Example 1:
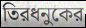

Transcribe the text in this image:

তিরধনুকের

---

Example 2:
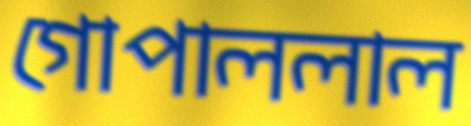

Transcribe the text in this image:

গোপাললাল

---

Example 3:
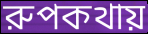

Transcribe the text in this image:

রুপকথায়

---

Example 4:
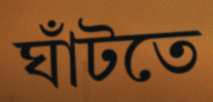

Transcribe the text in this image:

ঘাঁটতে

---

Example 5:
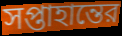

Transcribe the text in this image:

সপ্তাহান্তের